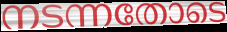
നടന്നതോടെ